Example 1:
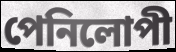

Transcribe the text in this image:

পেনিলোপী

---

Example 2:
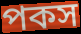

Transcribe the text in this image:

পকস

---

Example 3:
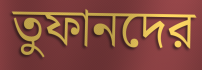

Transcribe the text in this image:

তুফানদের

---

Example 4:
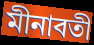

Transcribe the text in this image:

মীনাবতী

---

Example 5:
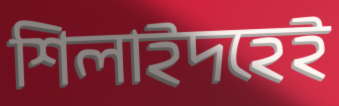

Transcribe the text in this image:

শিলাইদহেই